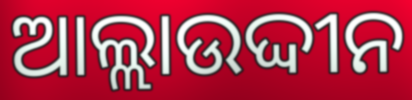
ଆଲ୍ଲାଉଦ୍ଦୀନ